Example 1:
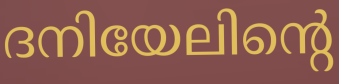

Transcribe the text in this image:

ദനിയേലിന്റെ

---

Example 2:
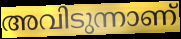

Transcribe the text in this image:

അവിടുന്നാണ്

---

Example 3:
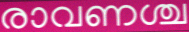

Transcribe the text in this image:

രാവണശ്ച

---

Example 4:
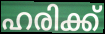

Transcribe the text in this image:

ഹരിക്ക്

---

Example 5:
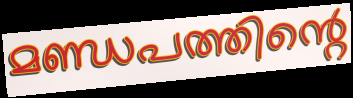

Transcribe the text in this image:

മണ്ഡപത്തിന്റെ